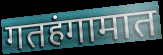
गतहंगामात